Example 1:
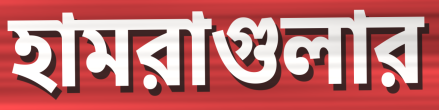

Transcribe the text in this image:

হামরাগুলার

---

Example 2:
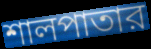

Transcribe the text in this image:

শালপাতার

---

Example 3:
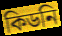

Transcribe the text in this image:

কিডনি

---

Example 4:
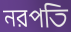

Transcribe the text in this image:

নরপতি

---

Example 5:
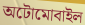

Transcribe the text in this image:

অটোমোবাইল